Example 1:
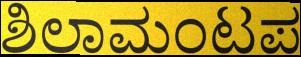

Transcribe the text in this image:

ಶಿಲಾಮಂಟಪ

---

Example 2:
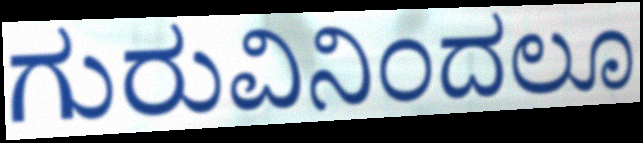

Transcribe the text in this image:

ಗುರುವಿನಿಂದಲೂ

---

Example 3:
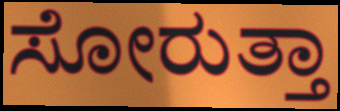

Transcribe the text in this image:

ಸೋರುತ್ತಾ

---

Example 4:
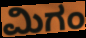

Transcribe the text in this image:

ಮಿಗಂ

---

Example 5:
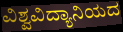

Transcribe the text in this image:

ವಿಶ್ವವಿದ್ಯಾನಿಯದ